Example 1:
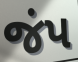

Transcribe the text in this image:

જંપ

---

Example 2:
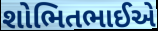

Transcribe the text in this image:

શોભિતભાઈએ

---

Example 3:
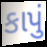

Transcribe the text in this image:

કાપું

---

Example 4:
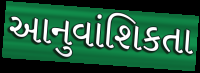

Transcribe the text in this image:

આનુવાંશિકતા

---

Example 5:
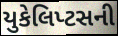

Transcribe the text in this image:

યુકેલિપ્ટસની